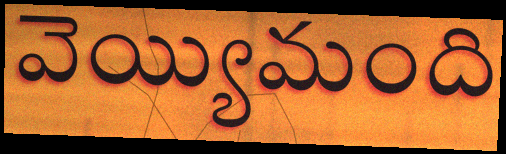
వెయ్యిమంది